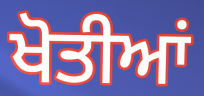
ਖੋਤੀਆਂ